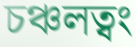
চঞ্চলত্বং